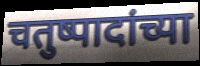
चतुष्पादांच्या